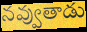
నవ్వుతాడు